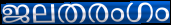
ജലതരംഗം